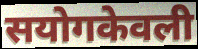
सयोगकेवली